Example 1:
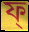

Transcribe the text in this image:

ফ্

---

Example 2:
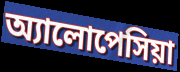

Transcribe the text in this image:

অ্যালোপেসিয়া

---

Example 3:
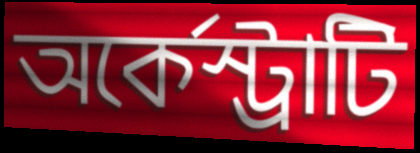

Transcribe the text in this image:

অর্কেস্ট্রাটি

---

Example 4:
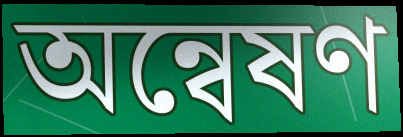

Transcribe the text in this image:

অন্বেষণ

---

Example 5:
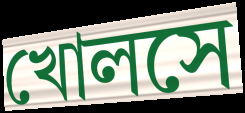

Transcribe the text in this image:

খোলসে